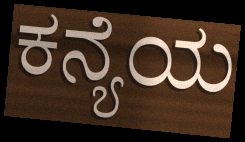
ಕನ್ಯೆಯ